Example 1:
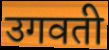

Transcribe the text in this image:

उगवती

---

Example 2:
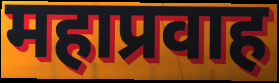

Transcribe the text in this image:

महाप्रवाह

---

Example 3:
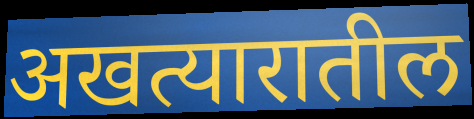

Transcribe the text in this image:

अखत्यारातील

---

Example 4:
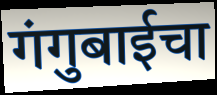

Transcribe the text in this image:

गंगुबाईचा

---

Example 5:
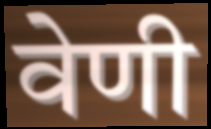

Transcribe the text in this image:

वेणी